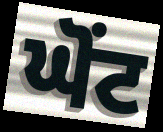
ਘੋਂਟ